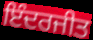
ਇੰਦਰਜੀਤ